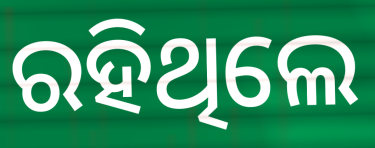
ରହିଥିଲେ